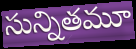
సున్నితమూ